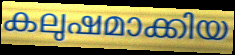
കലുഷമാക്കിയ